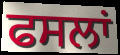
ਫਸਲਾਂ